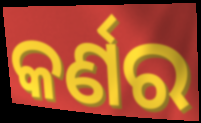
କର୍ଣର